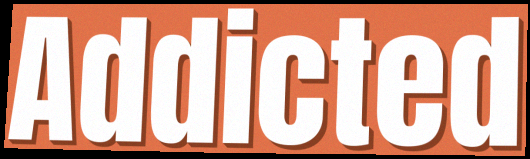
Addicted